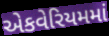
એકવેરિયમમાં